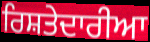
ਰਿਸ਼ਤੇਦਾਰੀਆ